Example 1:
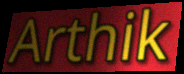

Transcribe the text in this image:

Arthik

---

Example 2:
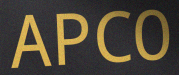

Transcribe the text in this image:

APCO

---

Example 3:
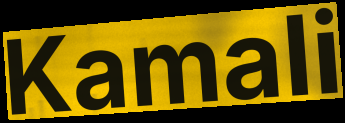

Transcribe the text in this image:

Kamali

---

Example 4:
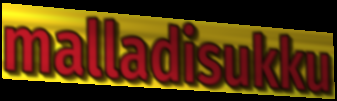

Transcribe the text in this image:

malladisukku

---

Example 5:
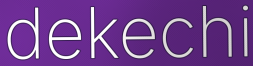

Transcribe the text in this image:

dekechi